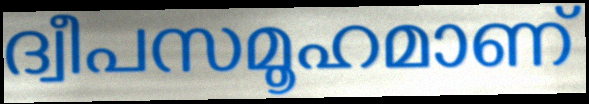
ദ്വീപസമൂഹമാണ്